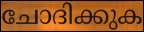
ചോദിക്കുക